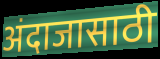
अंदाजासाठी